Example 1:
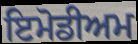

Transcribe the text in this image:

ਇਮੋਡੀਅਮ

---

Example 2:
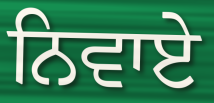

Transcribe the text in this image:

ਨਿਵਾਏ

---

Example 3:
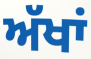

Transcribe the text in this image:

ਅੱਖਾਂ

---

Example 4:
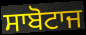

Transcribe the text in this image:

ਸਾਬੋਟਾਜ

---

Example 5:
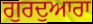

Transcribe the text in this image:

ਗੁਰਦੁਆਰਾ